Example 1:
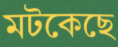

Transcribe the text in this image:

মটকেছে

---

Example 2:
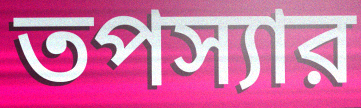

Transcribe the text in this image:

তপস্যার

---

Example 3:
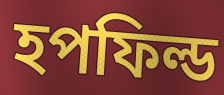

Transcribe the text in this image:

হপফিল্ড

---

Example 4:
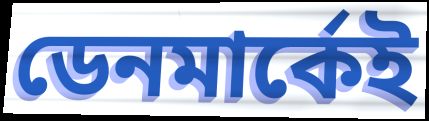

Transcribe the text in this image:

ডেনমার্কেই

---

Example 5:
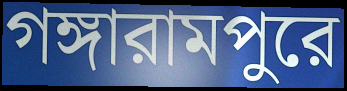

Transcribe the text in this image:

গঙ্গারামপুরে